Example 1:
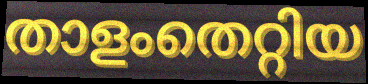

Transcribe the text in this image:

താളംതെറ്റിയ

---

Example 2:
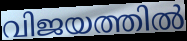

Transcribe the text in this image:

വിജയത്തിൽ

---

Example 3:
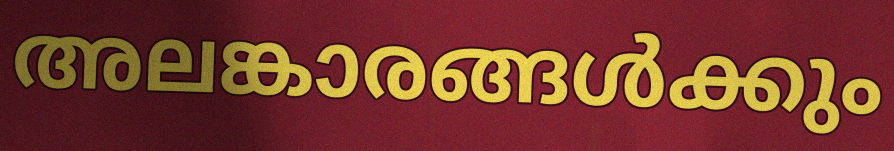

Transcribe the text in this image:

അലങ്കാരങ്ങൾക്കും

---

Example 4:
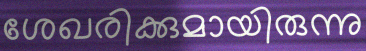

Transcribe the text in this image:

ശേഖരിക്കുമായിരുന്നു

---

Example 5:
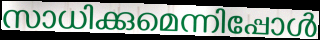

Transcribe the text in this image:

സാധിക്കുമെന്നിപ്പോൾ